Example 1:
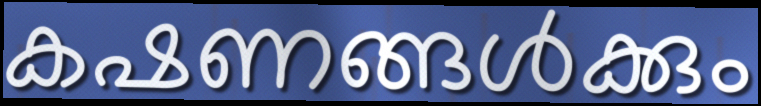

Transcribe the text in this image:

കഷണങ്ങൾക്കും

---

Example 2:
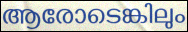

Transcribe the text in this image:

ആരോടെങ്കിലും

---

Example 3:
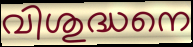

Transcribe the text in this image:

വിശുദ്ധനെ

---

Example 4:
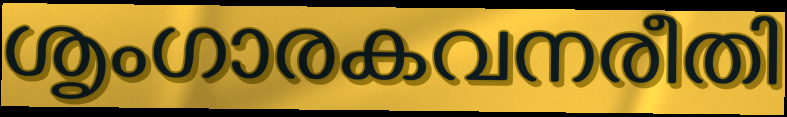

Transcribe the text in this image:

ശൃംഗാരകവനരീതി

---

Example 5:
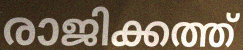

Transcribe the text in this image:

രാജിക്കത്ത്